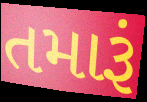
તમારૂં